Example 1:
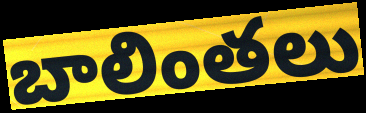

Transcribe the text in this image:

బాలింతలు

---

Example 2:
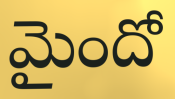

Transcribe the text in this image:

మైందో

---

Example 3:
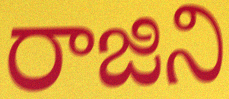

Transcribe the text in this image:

రాజిని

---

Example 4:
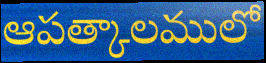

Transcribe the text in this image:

ఆపత్కాలములో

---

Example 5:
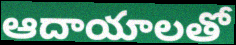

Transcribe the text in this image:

ఆదాయాలతో